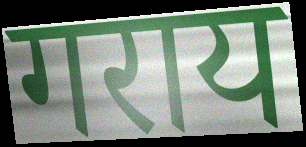
गराय